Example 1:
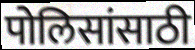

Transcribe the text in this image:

पोलिसांसाठी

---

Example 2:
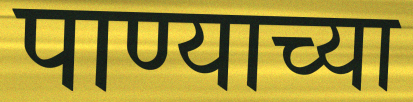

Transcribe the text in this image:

पाण्याच्या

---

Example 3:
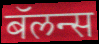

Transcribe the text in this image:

बॅलन्स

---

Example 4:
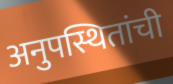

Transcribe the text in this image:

अनुपस्थितांची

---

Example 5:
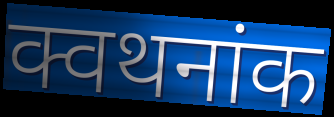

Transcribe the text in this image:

क्वथनांक